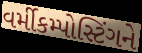
વર્મીકમ્પોસ્ટિંગને